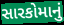
સારકોમાનું